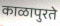
काळापुरते